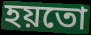
হয়তো